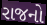
રાજનો